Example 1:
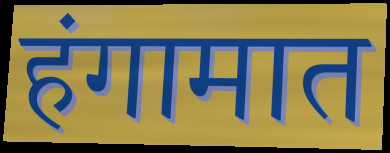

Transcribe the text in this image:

हंगामात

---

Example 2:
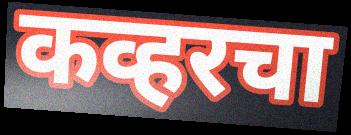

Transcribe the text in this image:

कव्हरचा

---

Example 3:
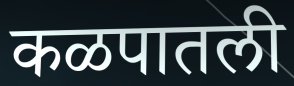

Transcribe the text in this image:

कळपातली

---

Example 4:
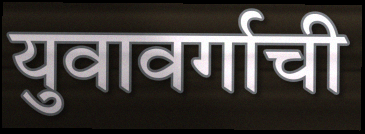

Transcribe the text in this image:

युवावर्गाची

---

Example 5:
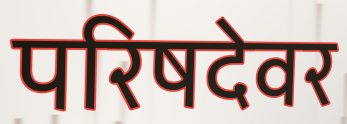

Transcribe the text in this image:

परिषदेवर